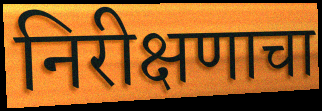
निरीक्षणाचा